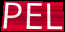
PEL